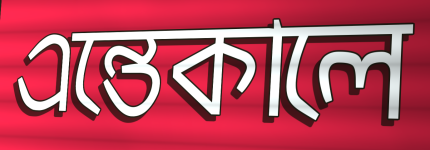
এন্তেকালে